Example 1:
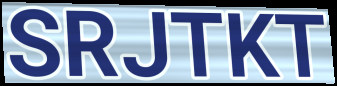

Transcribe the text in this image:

SRJTKT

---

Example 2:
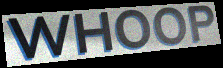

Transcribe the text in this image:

WHOOP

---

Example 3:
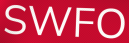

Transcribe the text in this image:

SWFO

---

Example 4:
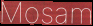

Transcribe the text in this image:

Mosam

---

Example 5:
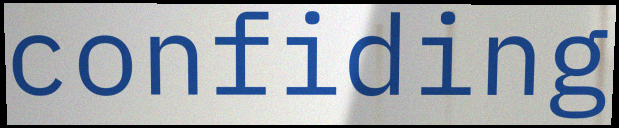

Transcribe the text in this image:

confiding